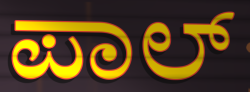
ಪಾಲ್